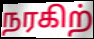
நரகிற்